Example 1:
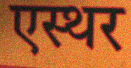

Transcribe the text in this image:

एस्थर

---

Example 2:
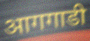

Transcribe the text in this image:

आगगाडी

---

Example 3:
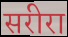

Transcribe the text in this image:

सरीरा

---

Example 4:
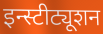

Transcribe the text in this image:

इन्स्टीट्यूशन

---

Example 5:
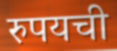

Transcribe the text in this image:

रुपयची